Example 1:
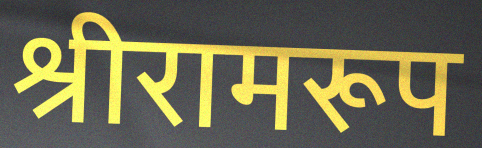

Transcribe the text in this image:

श्रीरामरूप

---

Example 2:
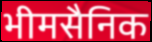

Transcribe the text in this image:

भीमसैनिक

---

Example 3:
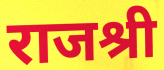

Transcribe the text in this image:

राजश्री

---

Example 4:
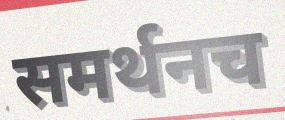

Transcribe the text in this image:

समर्थनच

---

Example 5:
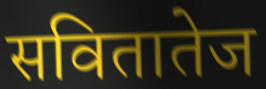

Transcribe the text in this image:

सवितातेज